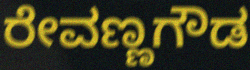
ರೇವಣ್ಣಗೌಡ